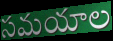
సమయాల